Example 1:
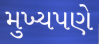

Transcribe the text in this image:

મુખ્યપણે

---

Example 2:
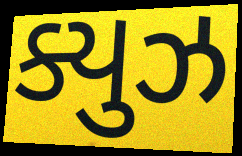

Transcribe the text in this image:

ક્યુઝ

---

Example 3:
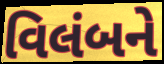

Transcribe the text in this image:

વિલંબને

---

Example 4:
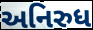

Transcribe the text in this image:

અનિરુધ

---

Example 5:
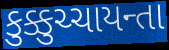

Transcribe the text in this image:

કુક્કુચ્ચાયન્તા